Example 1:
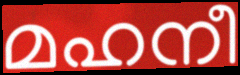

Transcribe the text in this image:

മഹനീ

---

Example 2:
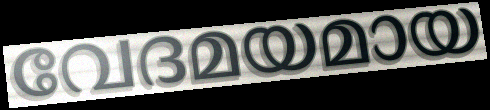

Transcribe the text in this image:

വേദമയമായ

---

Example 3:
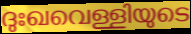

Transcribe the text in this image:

ദുഃഖവെള്ളിയുടെ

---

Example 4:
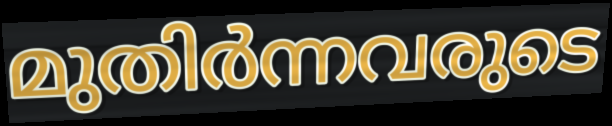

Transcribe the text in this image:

മുതിർന്നവരുടെ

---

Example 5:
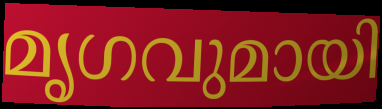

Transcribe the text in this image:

മൃഗവുമായി